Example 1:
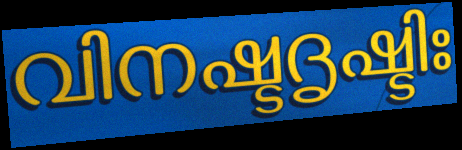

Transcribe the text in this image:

വിനഷ്ടദൃഷ്ടിഃ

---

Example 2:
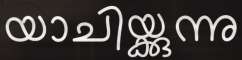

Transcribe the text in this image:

യാചിയ്ക്കുന്നു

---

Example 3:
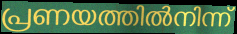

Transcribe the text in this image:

പ്രണയത്തിൽനിന്ന്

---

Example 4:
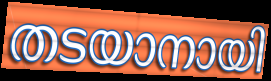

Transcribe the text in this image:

തടയാനായി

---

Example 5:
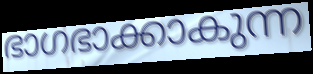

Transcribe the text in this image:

ഭാഗഭാക്കാകുന്ന